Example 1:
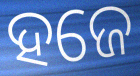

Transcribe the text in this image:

ହଜେ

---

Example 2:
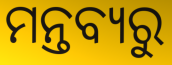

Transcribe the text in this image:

ମନ୍ତବ୍ୟରୁ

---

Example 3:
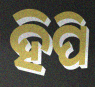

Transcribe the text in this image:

ହିପି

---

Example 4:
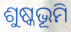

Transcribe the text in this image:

ଶୁଷ୍କଭୂମି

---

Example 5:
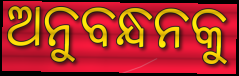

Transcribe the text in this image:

ଅନୁବନ୍ଧନକୁ